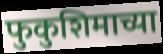
फुकुशिमाच्या